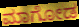
ಮಾಗೋಡ